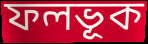
ফলভূক